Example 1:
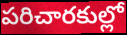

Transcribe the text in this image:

పరిచారకుల్లో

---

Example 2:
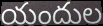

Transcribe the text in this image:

యందుల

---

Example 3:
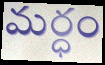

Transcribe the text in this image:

మర్ధం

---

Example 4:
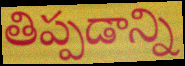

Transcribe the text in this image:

తిప్పడాన్ని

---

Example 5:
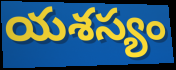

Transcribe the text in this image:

యశస్యం